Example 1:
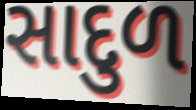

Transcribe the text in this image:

સાદુળ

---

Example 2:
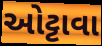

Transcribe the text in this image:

ઓટ્ટાવા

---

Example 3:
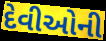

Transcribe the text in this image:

દેવીઓની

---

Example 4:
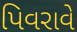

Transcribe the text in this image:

પિવરાવે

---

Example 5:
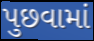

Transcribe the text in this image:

પુછવામાં